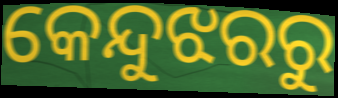
କେନ୍ଦୁଝରରୁ